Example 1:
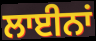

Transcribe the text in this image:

ਲਾਈਨਾਂ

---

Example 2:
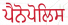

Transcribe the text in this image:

ਪੈਨੋਪੋਲਿਸ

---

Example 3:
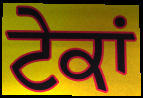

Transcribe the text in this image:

ਟੇਕਾਂ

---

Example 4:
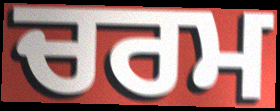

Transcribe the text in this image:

ਚਰਮ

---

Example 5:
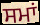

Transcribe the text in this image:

ਸਮਾਂ